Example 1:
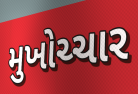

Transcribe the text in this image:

મુખોચ્ચાર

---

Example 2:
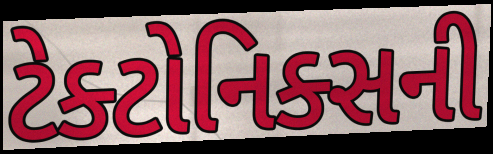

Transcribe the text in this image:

ટેક્ટોનિક્સની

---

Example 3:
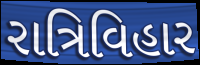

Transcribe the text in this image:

રાત્રિવિહાર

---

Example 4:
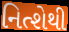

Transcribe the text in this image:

નિત્શેથી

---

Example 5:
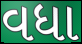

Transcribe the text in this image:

વધા